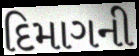
દિમાગની